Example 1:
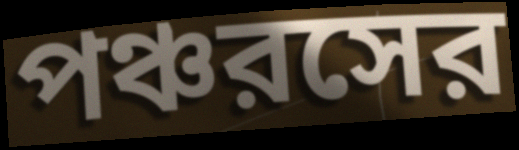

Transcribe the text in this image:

পঞ্চরসের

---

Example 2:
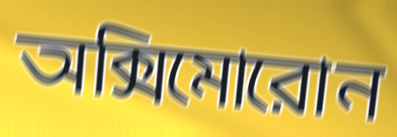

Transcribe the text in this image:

অক্সিমোরোন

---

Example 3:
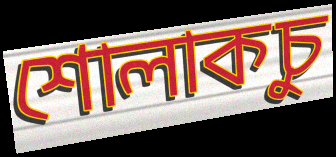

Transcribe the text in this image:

শোলাকচু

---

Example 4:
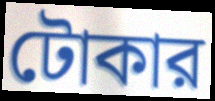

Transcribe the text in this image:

টোকার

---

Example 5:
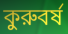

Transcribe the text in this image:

কুরুবর্ষ